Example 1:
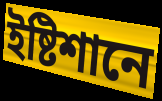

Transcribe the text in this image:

ইষ্টিশানে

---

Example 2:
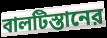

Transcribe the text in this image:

বালটিস্তানের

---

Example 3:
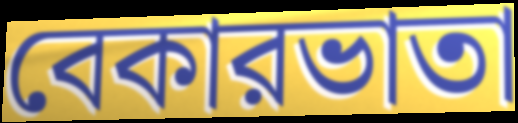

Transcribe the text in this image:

বেকারভাতা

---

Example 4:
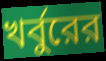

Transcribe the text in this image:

খর্বুরের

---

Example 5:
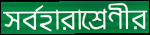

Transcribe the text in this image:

সর্বহারাশ্রেণীর